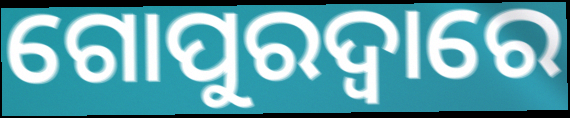
ଗୋପୁରଦ୍ଵାରେ